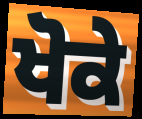
ਖੋਕੇ